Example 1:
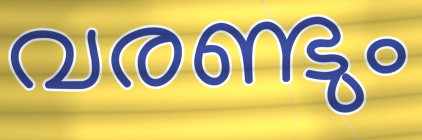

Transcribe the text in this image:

വരണ്ടും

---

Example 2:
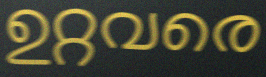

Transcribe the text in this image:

ഉറ്റവരെ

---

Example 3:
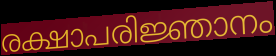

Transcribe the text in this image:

രക്ഷാപരിജ്ഞാനം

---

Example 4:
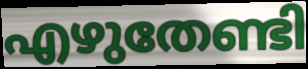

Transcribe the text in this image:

എഴുതേണ്ടി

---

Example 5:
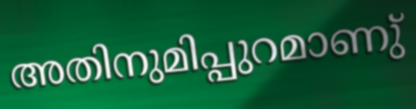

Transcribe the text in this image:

അതിനുമിപ്പുറമാണു്